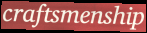
craftsmenship